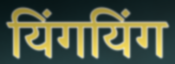
यिंगयिंग